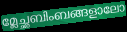
മ്ലേച്ഛബിംബങ്ങളാലോ